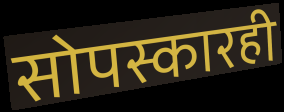
सोपस्कारही